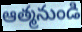
ఆత్మనుండి